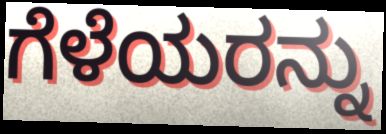
ಗೆಳೆಯರನ್ನು